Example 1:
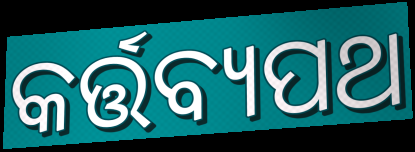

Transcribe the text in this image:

କର୍ତ୍ତବ୍ୟପଥ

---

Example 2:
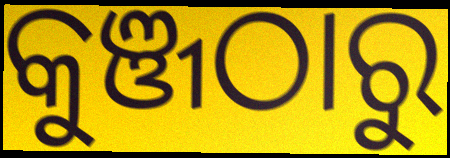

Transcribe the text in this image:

କୁଞ୍ଜଠାରୁ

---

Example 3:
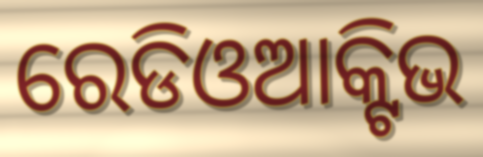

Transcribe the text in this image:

ରେଡିଓଆକ୍ଟିଭ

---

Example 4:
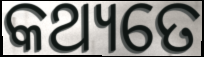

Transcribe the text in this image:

କଥ୍ୟତେ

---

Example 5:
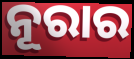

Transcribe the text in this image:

ନୂରାର